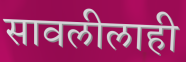
सावलीलाही